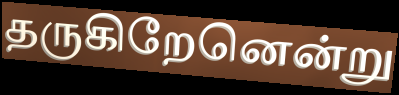
தருகிறேனென்று